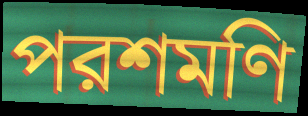
পরশমণি